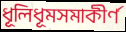
ধূলিধূমসমাকীর্ণ